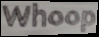
Whoop